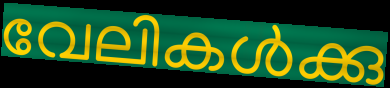
വേലികൾക്കു